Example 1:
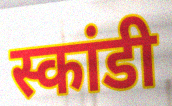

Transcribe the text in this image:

स्कांडी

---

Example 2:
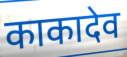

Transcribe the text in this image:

काकादेव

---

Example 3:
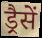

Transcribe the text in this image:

ड्रैसें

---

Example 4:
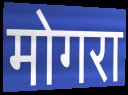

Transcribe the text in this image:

मोगरा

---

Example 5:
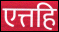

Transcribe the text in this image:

एत्तहि